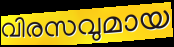
വിരസവുമായ